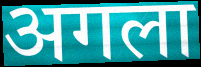
अगला